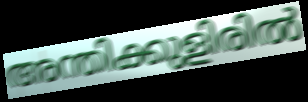
അന്തിക്കുളിരിൽ